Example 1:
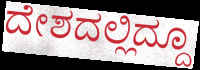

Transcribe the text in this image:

ದೇಶದಲ್ಲಿದ್ದೂ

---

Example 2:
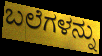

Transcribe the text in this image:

ಬಲೆಗಳನ್ನು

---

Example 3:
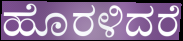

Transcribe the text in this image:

ಹೊರಳಿದರೆ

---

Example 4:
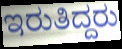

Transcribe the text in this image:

ಇರುತಿದ್ದರು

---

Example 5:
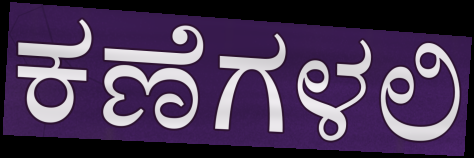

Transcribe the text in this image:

ಕಣೆಗಳಲಿ